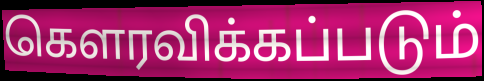
கௌரவிக்கப்படும்